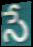
సే